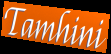
Tamhini